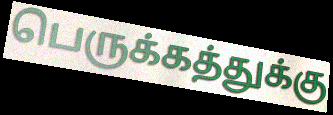
பெருக்கத்துக்கு